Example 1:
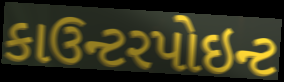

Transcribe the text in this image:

કાઉન્ટરપોઇન્ટ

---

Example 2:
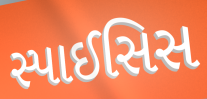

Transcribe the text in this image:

સ્પાઈસિસ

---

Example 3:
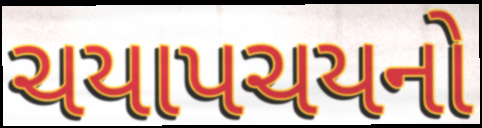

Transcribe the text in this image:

ચયાપચયનો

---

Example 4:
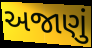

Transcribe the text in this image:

અજાણું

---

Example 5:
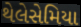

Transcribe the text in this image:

થેલેસેમિયા